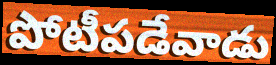
పోటీపడేవాడు